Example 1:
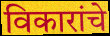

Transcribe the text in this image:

विकारांचे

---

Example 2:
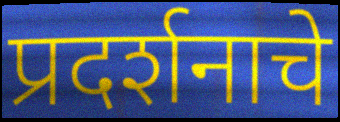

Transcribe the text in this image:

प्रदर्शनाचे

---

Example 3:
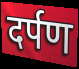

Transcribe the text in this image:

दर्पण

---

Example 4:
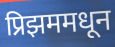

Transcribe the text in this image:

प्रिझममधून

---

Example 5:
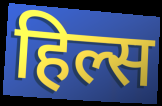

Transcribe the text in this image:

हिल्स